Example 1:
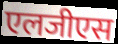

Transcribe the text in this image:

एलजीएस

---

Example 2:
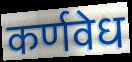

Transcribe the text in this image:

कर्णवेध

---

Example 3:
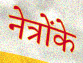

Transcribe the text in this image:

नेत्रोंके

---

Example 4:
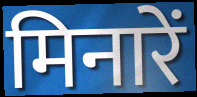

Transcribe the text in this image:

मिनारें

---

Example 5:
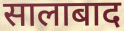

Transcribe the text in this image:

सालाबाद